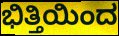
ಭಿತ್ತಿಯಿಂದ